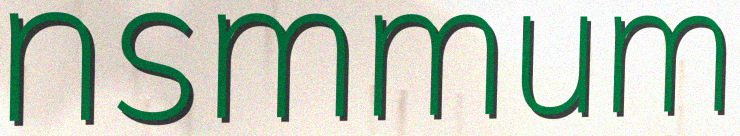
nsmmum